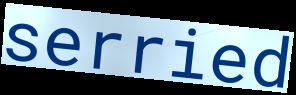
serried